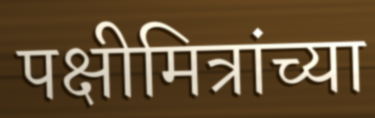
पक्षीमित्रांच्या